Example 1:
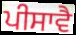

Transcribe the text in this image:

ਪੀਸਾਵੈ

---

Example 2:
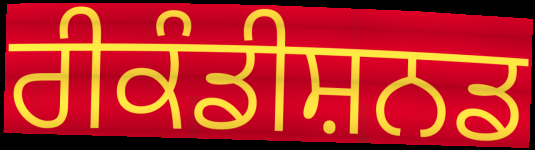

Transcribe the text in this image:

ਰੀਕੰਡੀਸ਼ਨਡ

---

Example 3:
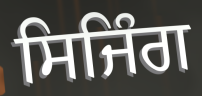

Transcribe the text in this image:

ਸਿਜਿੰਗ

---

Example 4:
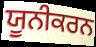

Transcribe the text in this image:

ਯੂਨੀਕਰਨ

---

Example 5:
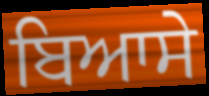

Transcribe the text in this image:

ਬਿਆਸੇ